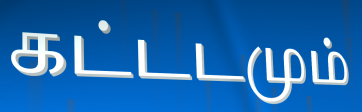
கட்டடமும்